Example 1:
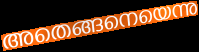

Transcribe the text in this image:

അതെങ്ങനെയെന്നു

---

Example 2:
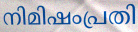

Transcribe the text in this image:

നിമിഷംപ്രതി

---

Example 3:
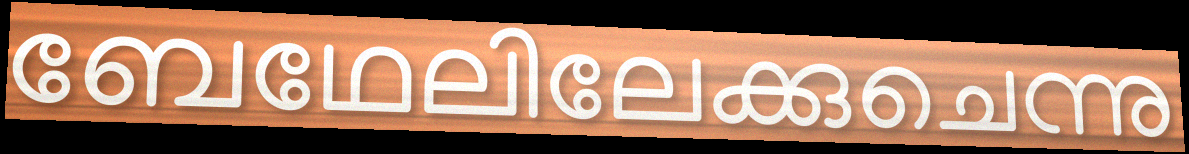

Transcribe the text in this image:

ബേഥേലിലേക്കുചെന്നു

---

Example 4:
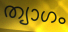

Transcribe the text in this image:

ത്യാഗം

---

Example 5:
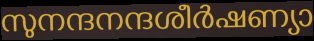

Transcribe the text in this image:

സുനന്ദനന്ദശീർഷണ്യാ